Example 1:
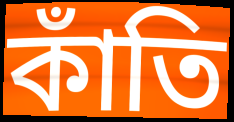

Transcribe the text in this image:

কাঁতি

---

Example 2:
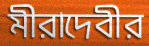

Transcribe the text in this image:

মীরাদেবীর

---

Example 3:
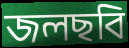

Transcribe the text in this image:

জলছবি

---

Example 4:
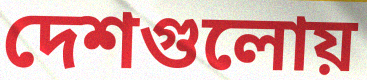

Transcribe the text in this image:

দেশগুলোয়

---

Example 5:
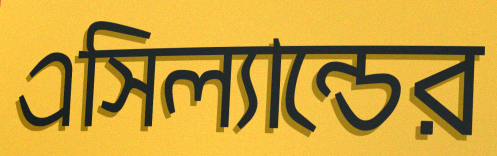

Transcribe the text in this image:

এসিল্যান্ডের